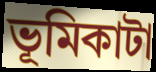
ভূমিকাটা